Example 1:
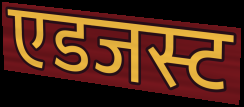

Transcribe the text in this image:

एडजस्ट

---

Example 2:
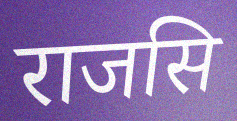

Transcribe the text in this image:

राजसि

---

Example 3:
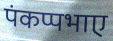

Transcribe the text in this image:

पंकप्पभाए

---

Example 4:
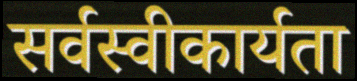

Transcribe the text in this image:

सर्वस्वीकार्यता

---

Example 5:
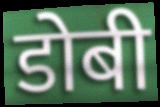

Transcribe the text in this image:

डोबी